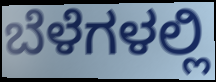
ಬೆಳೆಗಳಲ್ಲಿ